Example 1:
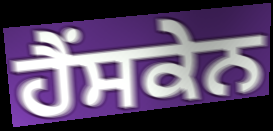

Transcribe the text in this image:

ਹੈਂਸਕੇਨ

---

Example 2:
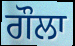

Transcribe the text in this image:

ਗੌਲਾ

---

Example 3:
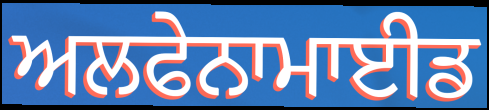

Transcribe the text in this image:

ਅਲਫੇਨਾਮਾਈਡ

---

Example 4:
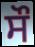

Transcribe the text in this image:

ਸੌ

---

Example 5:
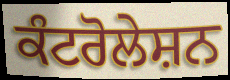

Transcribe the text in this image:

ਕੰਟਰੋਲੇਸ਼ਨ